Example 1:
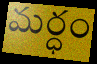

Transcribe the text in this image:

మర్ధం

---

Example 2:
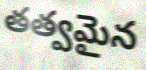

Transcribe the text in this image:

తత్వమైన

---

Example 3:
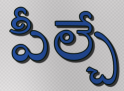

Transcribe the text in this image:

పీల్చే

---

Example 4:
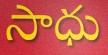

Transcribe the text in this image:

సాధు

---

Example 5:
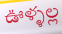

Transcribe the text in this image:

ఊళ్ళల్ల